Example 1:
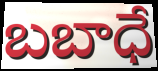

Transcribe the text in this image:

బబాధే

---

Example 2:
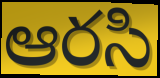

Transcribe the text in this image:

ఆరసి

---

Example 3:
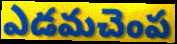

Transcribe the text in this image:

ఎడమచెంప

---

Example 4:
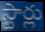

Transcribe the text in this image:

స్టార్లు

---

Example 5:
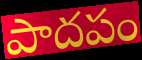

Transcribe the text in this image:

పాదపం